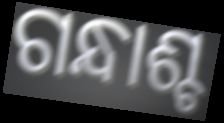
ଗନ୍ଧାଶ୍ଚ